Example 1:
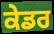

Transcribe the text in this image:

ਕੇਡਰ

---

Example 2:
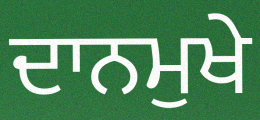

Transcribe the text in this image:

ਦਾਨਮੁਖੇ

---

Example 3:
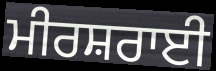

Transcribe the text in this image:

ਮੀਰਸ਼ਰਾਈ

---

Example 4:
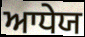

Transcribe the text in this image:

ਆਧੇਯ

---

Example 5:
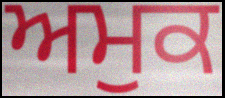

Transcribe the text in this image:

ਅਮੁਕ